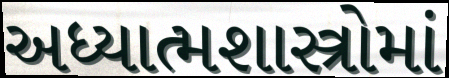
અધ્યાત્મશાસ્ત્રોમાં